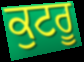
ਕੁਟਰੂ